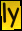
ly